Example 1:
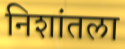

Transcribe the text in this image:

निशांतला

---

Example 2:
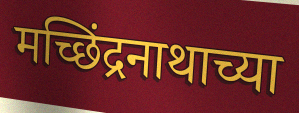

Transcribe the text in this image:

मच्छिंद्रनाथाच्या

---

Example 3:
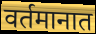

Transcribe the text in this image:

वर्तमानात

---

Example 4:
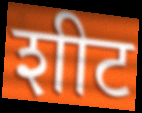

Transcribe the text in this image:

शीट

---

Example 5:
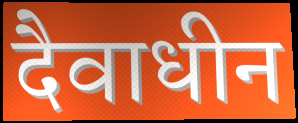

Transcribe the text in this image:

दैवाधीन